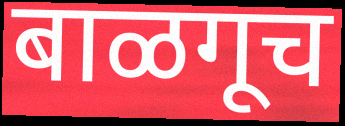
बाळगूच